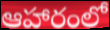
ఆహారంలో